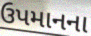
ઉપમાનના